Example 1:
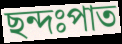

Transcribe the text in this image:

ছন্দঃপাত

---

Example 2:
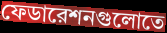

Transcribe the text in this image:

ফেডারেশনগুলোতে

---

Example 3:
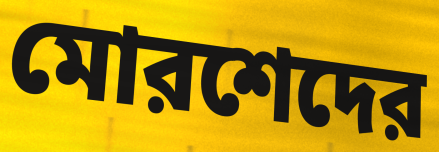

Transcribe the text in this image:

মোরশেদের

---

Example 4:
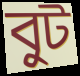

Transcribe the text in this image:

বুট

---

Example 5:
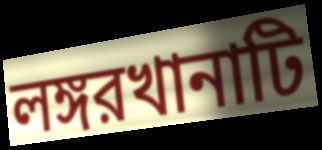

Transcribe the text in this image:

লঙ্গরখানাটি